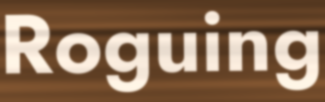
Roguing